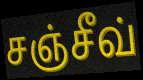
சஞ்சீவ்